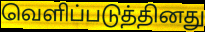
வெளிப்படுத்தினது